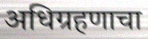
अधिग्रहणाचा